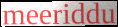
meeriddu